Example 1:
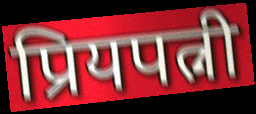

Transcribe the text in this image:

प्रियपत्नी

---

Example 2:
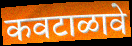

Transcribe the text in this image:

कवटाळावे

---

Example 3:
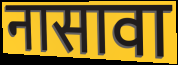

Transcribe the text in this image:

नासावा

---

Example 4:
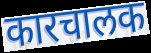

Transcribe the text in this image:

कारचालक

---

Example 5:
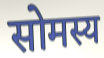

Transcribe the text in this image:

सोमस्य